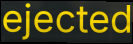
ejected